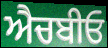
ਐਚਬੀਓ